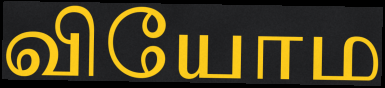
வியோம